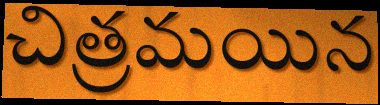
చిత్రమయిన